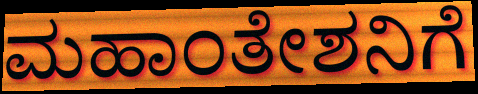
ಮಹಾಂತೇಶನಿಗೆ